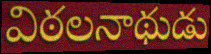
విఠలనాథుడు